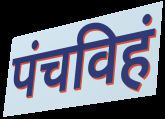
पंचविहं